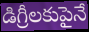
డిగ్రీలకుపైనే